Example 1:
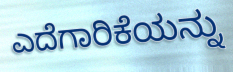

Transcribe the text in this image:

ಎದೆಗಾರಿಕೆಯನ್ನು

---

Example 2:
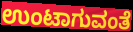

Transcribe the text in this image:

ಉಂಟಾಗುವಂತೆ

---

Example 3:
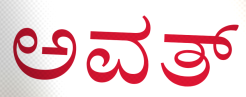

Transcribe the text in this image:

ಅವತ್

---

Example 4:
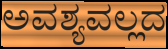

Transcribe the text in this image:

ಅವಶ್ಯವಲ್ಲದ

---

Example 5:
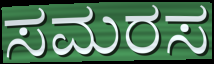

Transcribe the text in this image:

ಸಮರಸ